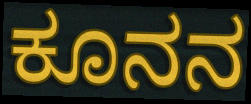
ಕೂನನ